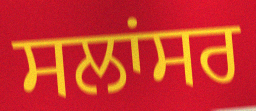
ਸਲਾਂਸਰ